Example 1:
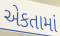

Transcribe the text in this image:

એકતામાં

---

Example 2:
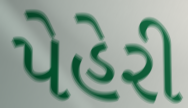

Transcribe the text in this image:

પેહેરી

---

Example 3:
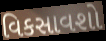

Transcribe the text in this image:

વિકસાવશો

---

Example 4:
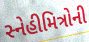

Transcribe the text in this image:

સ્નેહીમિત્રોની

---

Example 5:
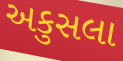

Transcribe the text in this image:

અકુસલા